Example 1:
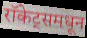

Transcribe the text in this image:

रॉकेट्समधून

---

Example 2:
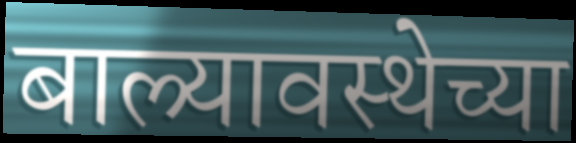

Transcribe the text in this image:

बाल्यावस्थेच्या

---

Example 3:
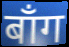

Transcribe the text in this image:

बाँग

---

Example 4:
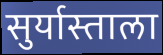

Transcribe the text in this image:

सुर्यास्ताला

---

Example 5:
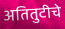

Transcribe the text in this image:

अतितुटीचे